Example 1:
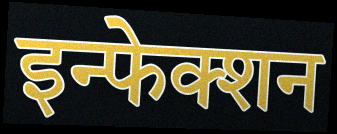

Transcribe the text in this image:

इन्‍फेक्‍शन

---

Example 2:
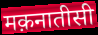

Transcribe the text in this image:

मक़नातीसी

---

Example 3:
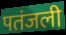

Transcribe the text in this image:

पतंजली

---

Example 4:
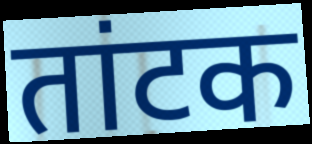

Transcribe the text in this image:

तांटक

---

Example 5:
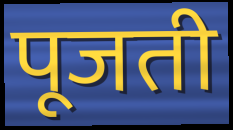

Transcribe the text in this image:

पूजती